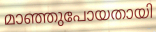
മാഞ്ഞുപോയതായി